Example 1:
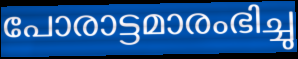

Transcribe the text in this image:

പോരാട്ടമാരംഭിച്ചു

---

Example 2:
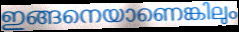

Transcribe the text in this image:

ഇങ്ങനെയാണെങ്കിലും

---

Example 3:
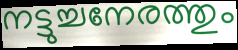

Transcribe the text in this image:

നട്ടുച്ചനേരത്തും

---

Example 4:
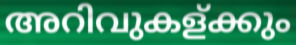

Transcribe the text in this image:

അറിവുകള്ക്കും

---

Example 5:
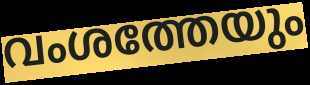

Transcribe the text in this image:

വംശത്തേയും